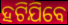
ହଟିଯିବେ